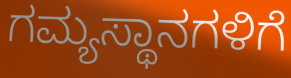
ಗಮ್ಯಸ್ಥಾನಗಳಿಗೆ